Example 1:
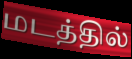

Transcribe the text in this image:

மடத்தில்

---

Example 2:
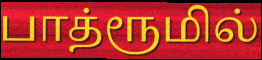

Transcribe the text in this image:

பாத்ரூமில்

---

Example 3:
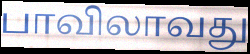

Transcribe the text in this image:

பாவிலாவது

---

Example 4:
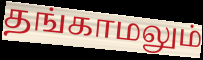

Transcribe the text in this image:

தங்காமலும்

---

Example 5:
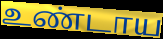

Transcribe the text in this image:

உண்டாய